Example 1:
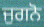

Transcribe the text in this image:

ਜੁਗਨੋ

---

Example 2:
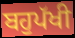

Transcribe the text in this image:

ਬਹੁਪੱਖੀ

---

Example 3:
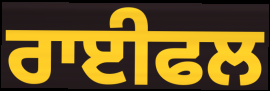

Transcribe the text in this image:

ਰਾਈਫਲ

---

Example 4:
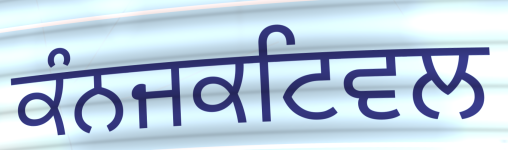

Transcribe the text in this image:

ਕੰਨਜਕਟਿਵਲ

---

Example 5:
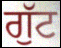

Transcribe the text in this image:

ਗੁੱਟ